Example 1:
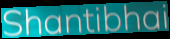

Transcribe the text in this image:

Shantibhai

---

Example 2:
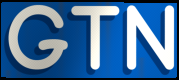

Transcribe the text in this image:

GTN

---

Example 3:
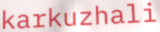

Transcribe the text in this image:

karkuzhali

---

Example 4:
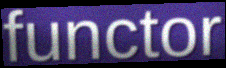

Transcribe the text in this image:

functor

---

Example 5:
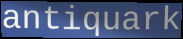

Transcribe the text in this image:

antiquark